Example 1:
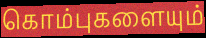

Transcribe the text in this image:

கொம்புகளையும்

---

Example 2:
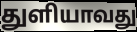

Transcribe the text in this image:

துளியாவது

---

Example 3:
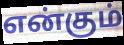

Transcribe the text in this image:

என்கும்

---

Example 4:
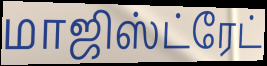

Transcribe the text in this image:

மாஜிஸ்ட்ரேட்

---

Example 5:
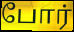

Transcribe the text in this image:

போர்